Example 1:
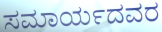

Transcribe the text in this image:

ಸಮಾರ್ಯದವರ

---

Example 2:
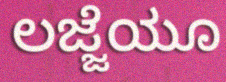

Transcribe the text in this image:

ಲಜ್ಜೆಯೂ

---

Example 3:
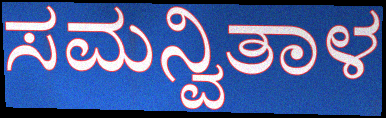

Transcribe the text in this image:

ಸಮನ್ವಿತಾಳ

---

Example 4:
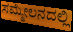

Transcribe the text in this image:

ಸಮ್ಮೇಲನದಲ್ಲಿ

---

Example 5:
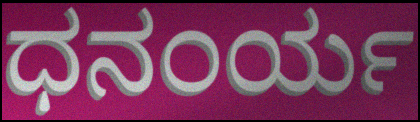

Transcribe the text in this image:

ಧನಂರ್ಯ